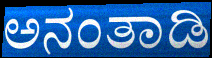
ಅನಂತಾಡಿ